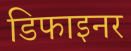
डिफाइनर